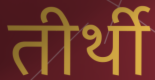
तीर्थी